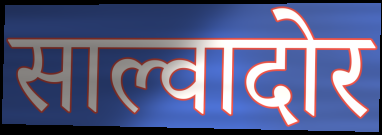
साल्वादोर